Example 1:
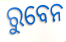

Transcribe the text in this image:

ରୁବେନ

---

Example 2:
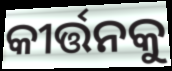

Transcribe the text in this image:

କୀର୍ତ୍ତନକୁ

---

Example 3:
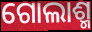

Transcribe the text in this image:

ଗୋଲାଶ୍ମ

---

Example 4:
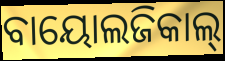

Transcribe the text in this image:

ବାୟୋଲଜିକାଲ୍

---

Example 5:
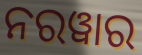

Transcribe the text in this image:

ନରୱାର